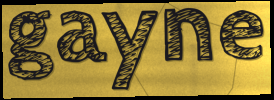
gayne